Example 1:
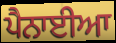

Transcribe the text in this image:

ਪੈਨਾਈਆ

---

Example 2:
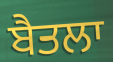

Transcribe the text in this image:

ਬੈਤਲਾ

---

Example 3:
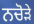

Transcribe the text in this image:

ਨਚੋੜੇ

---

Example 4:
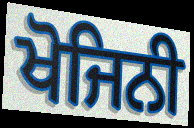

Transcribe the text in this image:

ਖੋਜਿਨੀ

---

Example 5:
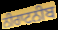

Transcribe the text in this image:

ਨੀਰਾਟਨੀਬ